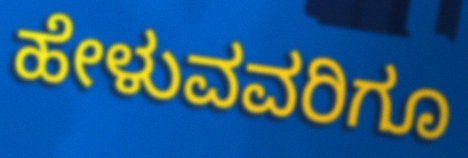
ಹೇಳುವವರಿಗೂ